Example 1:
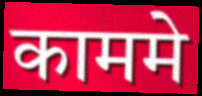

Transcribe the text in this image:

काममे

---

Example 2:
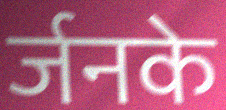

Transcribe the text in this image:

र्जनके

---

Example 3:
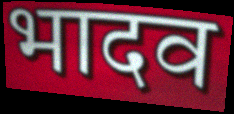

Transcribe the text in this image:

भादव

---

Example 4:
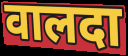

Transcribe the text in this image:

वालदा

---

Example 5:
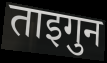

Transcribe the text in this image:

ताइगुन